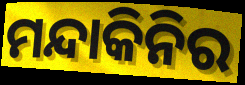
ମନ୍ଦାକିନିର